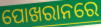
ପୋଖରାନରେ